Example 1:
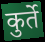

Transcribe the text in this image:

कुर्ते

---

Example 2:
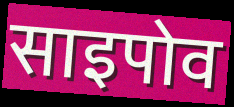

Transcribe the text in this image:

साइपोव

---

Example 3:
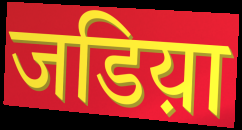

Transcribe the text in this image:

जडिय़ा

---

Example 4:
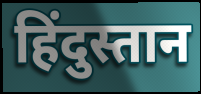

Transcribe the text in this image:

हिंदुस्तान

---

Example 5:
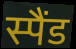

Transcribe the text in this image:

स्पैंड